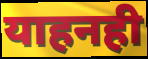
याहनही